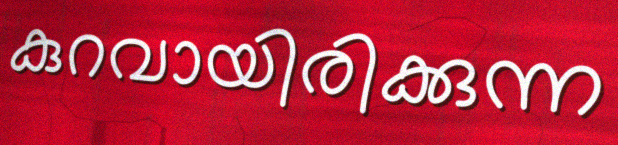
കുറവായിരിക്കുന്ന